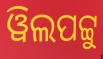
ୱିଲପଟ୍ଟୁ